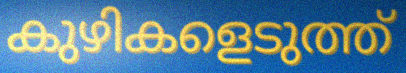
കുഴികളെടുത്ത്